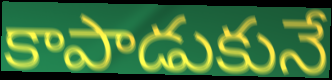
కాపాడుకునే